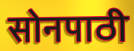
सोनपाठी